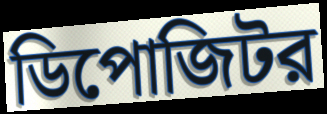
ডিপোজিটর